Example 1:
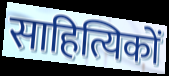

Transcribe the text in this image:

साहित्यिकों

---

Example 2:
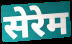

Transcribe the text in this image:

सेरेम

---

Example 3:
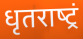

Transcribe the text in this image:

धृतराष्ट्रं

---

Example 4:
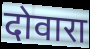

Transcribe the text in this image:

दोवारा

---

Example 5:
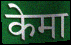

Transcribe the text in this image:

केमा